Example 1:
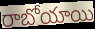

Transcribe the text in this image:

రాబోయాయి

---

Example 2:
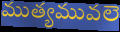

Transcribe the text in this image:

ముత్యమువలె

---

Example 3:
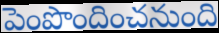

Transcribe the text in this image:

పెంపొందించనుంది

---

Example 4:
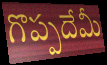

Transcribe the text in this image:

గొప్పదేమీ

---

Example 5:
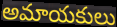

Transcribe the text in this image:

అమాయకులు